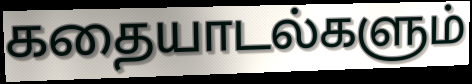
கதையாடல்களும்